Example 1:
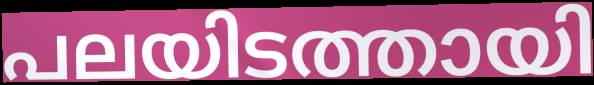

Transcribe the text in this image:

പലയിടത്തായി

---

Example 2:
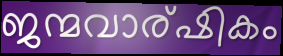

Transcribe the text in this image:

ജന്മവാര്ഷികം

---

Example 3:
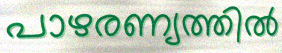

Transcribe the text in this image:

പാഴരണ്യത്തിൽ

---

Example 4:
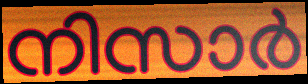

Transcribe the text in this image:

നിസാർ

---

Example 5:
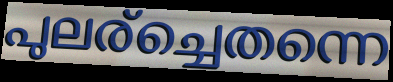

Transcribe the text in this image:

പുലര്ച്ചെതന്നെ